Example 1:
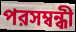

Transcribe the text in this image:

পরসম্বন্ধী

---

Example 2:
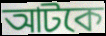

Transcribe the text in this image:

আটকে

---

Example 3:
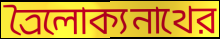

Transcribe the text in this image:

ত্রৈলোক্যনাথের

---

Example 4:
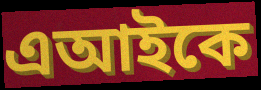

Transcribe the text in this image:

এআইকে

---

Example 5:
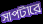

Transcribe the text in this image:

সাপটারে